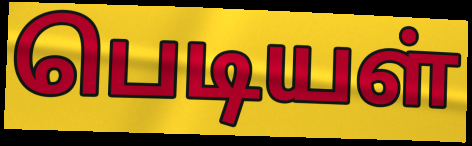
பெடியள்